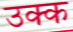
उक्क